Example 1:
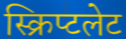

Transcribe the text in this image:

स्क्रिप्टलेट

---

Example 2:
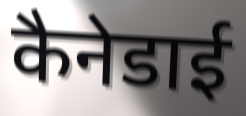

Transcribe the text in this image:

कैनेडाई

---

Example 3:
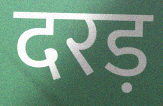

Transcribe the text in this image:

दरड़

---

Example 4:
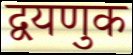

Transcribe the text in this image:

द्वयणुक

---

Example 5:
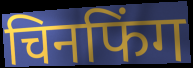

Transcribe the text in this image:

चिनफिंग